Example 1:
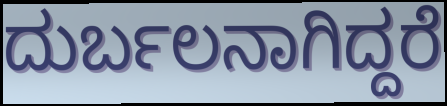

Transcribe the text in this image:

ದುರ್ಬಲನಾಗಿದ್ದರೆ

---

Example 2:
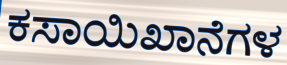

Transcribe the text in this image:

ಕಸಾಯಿಖಾನೆಗಳ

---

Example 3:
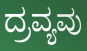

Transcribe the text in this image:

ದ್ರವ್ಯವು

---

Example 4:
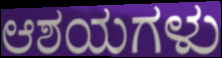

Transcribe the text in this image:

ಆಶಯಗಳು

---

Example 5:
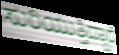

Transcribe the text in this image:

ಸುರಿಯುತ್ತಿದ್ದಾರೆ